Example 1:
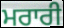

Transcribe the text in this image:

ਮਰਾਰੀ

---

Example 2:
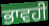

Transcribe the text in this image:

ਭਾਵਹੀ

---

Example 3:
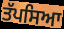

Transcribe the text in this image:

ਤੱਪਸਿਆ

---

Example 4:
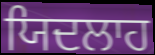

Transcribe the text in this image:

ਯਿਦਲਾਹ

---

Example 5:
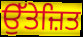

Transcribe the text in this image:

ਉੱਤੇਜ਼ਿਤ